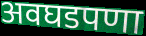
अवघडपणा